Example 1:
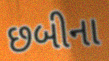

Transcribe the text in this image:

છબીના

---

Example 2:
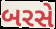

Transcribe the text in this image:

બરસે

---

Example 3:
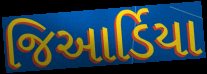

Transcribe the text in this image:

જિઆર્ડિયા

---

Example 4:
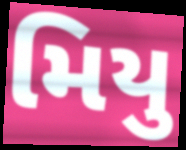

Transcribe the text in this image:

મિયુ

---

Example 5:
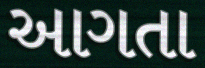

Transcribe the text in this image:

આગતા